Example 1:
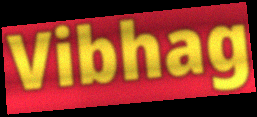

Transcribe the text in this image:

Vibhag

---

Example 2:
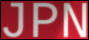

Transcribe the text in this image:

JPN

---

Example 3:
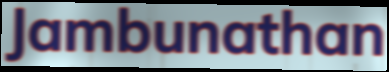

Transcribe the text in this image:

Jambunathan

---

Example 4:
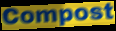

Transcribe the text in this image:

Compost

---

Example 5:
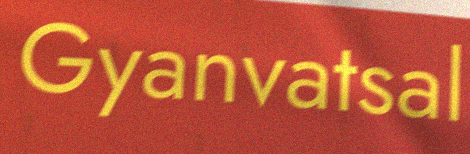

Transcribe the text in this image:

Gyanvatsal